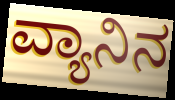
ವ್ಯಾನಿನ